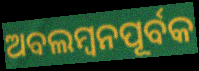
ଅବଲମ୍ୱନପୂର୍ବକ